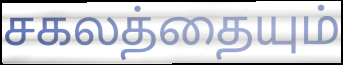
சகலத்தையும்